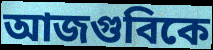
আজগুবিকে